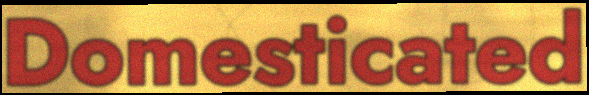
Domesticated